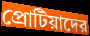
প্রোটিয়াদের